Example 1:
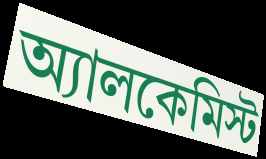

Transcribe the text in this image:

অ্যালকেমিস্ট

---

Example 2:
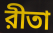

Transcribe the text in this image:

রীতা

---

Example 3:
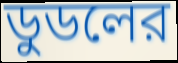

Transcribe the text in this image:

ডুডলের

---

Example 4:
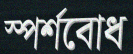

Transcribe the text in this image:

স্পর্শবোধ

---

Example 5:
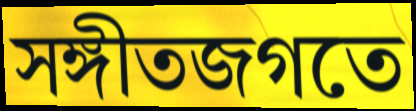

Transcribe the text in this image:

সঙ্গীতজগতে